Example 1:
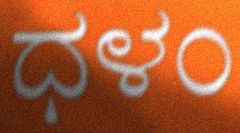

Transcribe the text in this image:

ಧಳಂ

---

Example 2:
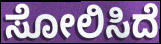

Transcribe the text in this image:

ಸೋಲಿಸಿದೆ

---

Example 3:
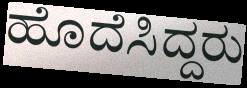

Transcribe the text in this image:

ಹೊದೆಸಿದ್ದರು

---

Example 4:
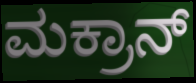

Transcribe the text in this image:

ಮಕ್ರಾನ್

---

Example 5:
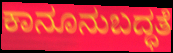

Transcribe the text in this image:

ಕಾನೂನುಬದ್ಧತೆ